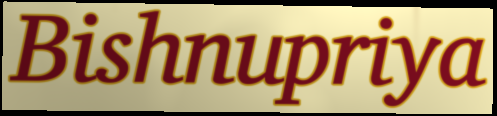
Bishnupriya